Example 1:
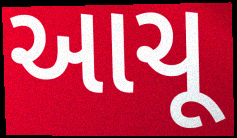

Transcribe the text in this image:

આચૂ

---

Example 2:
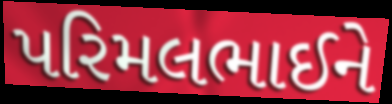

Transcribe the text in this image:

પરિમલભાઈને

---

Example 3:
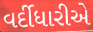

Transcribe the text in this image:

વર્દીધારીએ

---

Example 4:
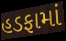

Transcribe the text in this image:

હડફામાં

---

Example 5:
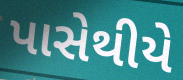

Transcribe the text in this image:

પાસેથીયે